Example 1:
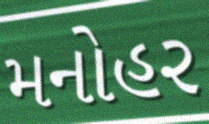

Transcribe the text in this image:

મનોહર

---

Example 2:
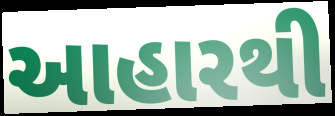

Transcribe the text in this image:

આહારથી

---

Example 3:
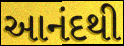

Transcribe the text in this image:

આનંદથી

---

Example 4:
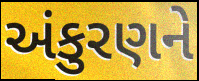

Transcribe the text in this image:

અંકુરણને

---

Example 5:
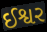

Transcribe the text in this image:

ઈશ્વર